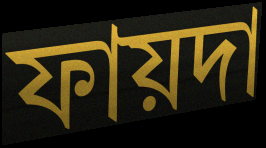
ফায়দা